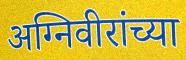
अग्निवीरांच्या